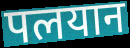
पलयान